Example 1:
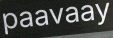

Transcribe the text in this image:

paavaay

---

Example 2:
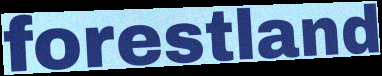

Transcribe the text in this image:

forestland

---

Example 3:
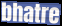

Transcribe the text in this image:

bhatre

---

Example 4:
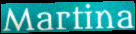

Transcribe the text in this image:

Martina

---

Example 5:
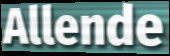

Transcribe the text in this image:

Allende